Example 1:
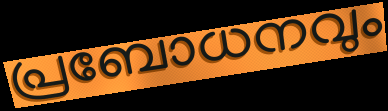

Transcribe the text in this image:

പ്രബോധനവും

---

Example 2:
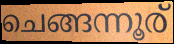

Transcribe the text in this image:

ചെങ്ങന്നൂര്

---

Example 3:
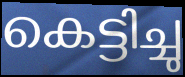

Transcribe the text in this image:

കെട്ടിച്ചു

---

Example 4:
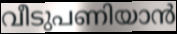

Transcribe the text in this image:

വീടുപണിയാൻ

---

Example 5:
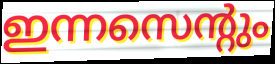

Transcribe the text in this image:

ഇന്നസെന്റും